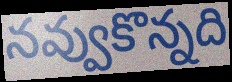
నవ్వుకొన్నది